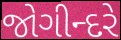
જોગીન્દરે